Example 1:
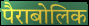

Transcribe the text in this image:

पैराबोलिक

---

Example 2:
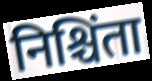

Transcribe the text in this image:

निश्चिंता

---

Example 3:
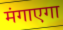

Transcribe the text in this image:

मंगाएगा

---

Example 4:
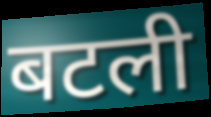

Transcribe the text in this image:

बटली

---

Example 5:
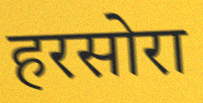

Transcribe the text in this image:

हरसोरा